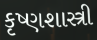
કૃષ્ણશાસ્ત્રી